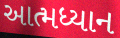
આત્મધ્યાન